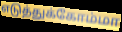
எடுத்துக்கோம்மா